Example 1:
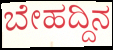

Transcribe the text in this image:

ಬೇಹದ್ದಿನ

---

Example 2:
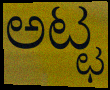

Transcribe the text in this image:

ಅಟ್ಟ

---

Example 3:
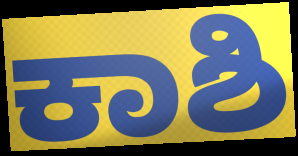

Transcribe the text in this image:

ಕಾಶಿ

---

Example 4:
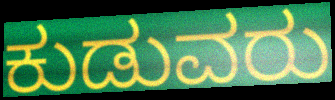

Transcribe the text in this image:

ಕುಡುವರು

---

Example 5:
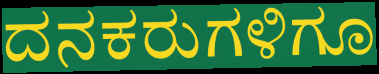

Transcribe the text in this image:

ದನಕರುಗಳಿಗೂ